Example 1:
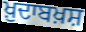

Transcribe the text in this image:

ਖ਼ੁਦਾਬਖ਼ਸ਼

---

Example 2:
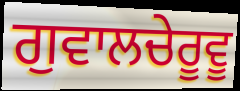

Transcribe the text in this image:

ਗੁਵਾਲਚੇਰੂਵੂ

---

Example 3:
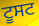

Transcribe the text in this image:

ਟੂਸਟ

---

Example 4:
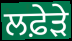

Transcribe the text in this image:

ਲਫ਼ੇੜੇ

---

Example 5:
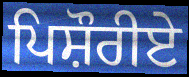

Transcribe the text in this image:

ਪਿਸ਼ੌਰੀਏ